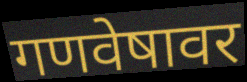
गणवेषावर